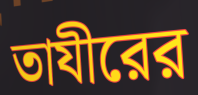
তাযীরের